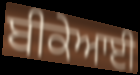
ਬੀਕੇਆਈ